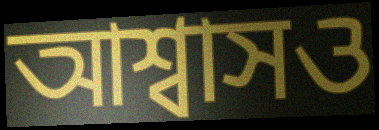
আশ্বাসও